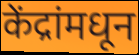
केंद्रांमधून